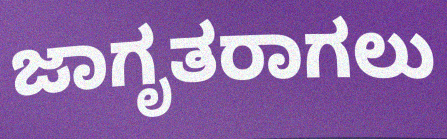
ಜಾಗೃತರಾಗಲು